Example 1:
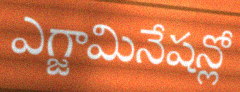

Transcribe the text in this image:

ఎగ్జామినేషన్లో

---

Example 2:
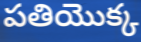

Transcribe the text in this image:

పతియొక్క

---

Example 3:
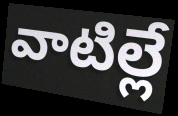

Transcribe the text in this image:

వాటిల్లే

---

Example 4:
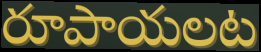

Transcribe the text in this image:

రూపాయలట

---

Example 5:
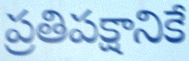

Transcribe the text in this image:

ప్రతిపక్షానికే